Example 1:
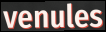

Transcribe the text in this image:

venules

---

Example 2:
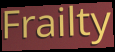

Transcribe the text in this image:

Frailty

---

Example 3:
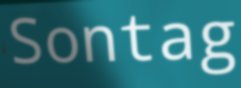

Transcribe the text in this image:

Sontag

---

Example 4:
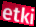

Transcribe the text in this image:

etki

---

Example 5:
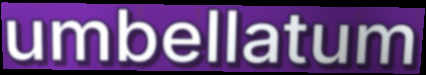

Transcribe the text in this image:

umbellatum